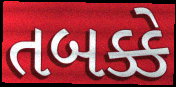
તબક્કે